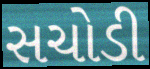
સચોડી